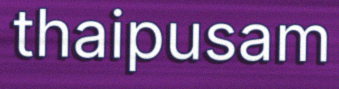
thaipusam